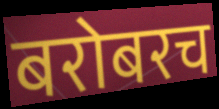
बरोबरच